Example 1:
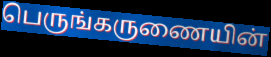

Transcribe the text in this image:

பெருங்கருணையின்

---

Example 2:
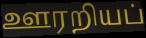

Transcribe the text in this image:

ஊரறியப்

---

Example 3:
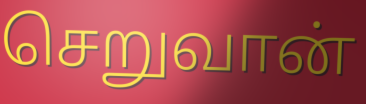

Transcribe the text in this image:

செறுவான்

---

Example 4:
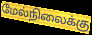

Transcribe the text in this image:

மேல்நிலைக்கு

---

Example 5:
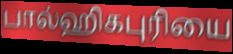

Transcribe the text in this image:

பால்ஹிகபுரியை